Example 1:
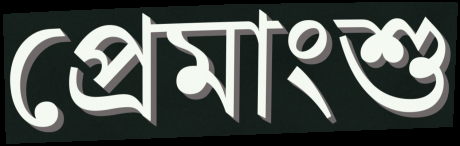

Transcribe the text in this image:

প্রেমাংশু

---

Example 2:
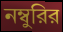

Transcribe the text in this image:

নম্বুরির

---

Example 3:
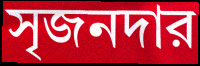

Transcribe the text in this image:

সৃজনদার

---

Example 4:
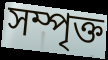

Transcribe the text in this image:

সম্পৃক্ত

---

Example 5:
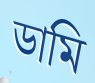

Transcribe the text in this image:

ডামি